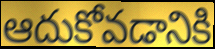
ఆదుకోవడానికి